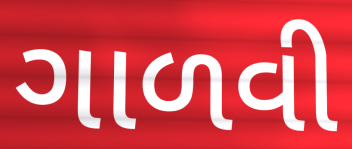
ગાળવી